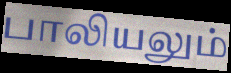
பாலியலும்